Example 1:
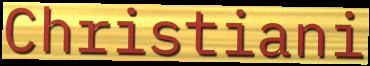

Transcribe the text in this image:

Christiani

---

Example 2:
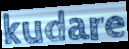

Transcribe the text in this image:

kudare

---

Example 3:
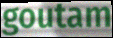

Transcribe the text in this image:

goutam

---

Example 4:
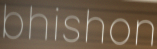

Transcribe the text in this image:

bhishon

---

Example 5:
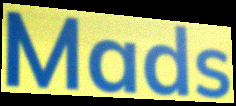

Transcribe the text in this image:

Mads